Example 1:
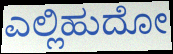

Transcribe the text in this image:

ಎಲ್ಲಿಹುದೋ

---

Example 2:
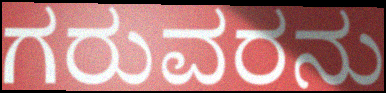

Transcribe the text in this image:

ಗರುವರನು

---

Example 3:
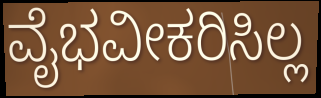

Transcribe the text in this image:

ವೈಭವೀಕರಿಸಿಲ್ಲ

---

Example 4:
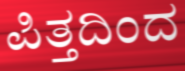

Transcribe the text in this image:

ಪಿತ್ತದಿಂದ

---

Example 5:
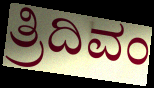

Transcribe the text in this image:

ತ್ರಿದಿವಂ